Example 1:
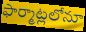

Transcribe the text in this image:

ఫార్మాట్లలోనూ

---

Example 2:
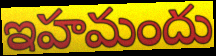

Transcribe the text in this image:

ఇహమందు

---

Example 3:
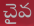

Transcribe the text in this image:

చైవ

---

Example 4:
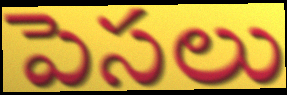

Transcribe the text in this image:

పెసలు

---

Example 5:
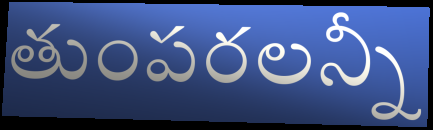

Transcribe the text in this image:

తుంపరలన్నీ